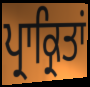
ਪ੍ਰਾਕ੍ਰਿਤਾਂ